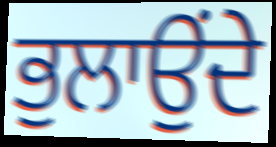
ਭੁਲਾਉਂਦੇ